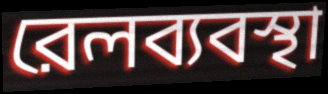
রেলব্যবস্থা